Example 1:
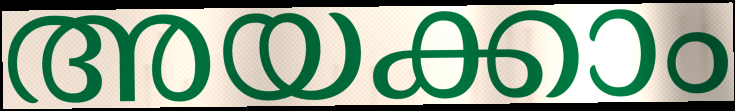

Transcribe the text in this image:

അയക്കാം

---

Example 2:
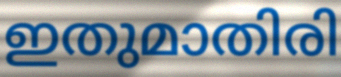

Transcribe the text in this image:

ഇതുമാതിരി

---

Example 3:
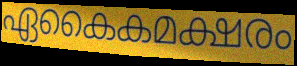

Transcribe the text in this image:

ഏകൈകമക്ഷരം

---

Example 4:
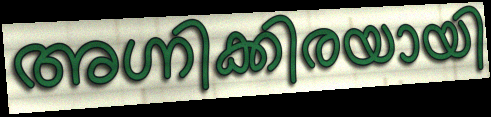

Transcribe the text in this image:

അഗ്നിക്കിരയായി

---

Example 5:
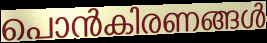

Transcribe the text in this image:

പൊൻകിരണങ്ങൾ